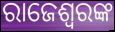
ରାଜେଶ୍ୱରଙ୍କ